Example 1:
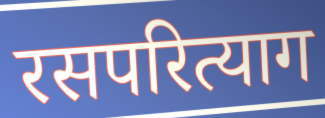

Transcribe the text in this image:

रसपरित्याग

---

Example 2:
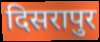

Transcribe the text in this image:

दिसरापुर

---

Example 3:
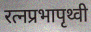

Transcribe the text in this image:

रत्नप्रभापृथ्वी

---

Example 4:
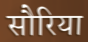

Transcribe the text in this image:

सौरिया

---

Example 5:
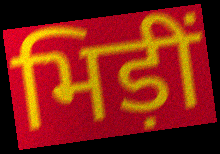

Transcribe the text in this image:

भिड़ीं